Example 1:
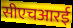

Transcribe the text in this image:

सीएचआरई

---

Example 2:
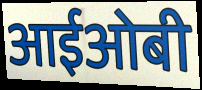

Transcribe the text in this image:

आईओबी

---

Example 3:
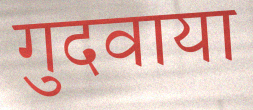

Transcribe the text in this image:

गुदवाया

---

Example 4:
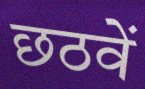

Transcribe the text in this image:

छठवें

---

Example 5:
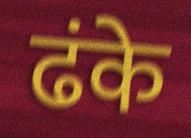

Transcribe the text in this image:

ढंके